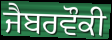
ਜੈਬਰਵੌਕੀ